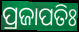
ପ୍ରଜାପତିଃ